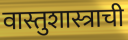
वास्तुशास्त्राची